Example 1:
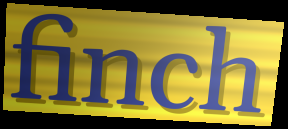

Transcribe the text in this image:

finch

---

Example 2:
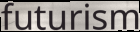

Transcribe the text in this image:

futurism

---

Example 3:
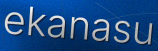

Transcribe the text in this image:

ekanasu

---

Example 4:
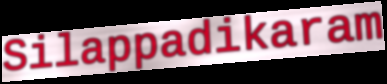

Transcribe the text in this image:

Silappadikaram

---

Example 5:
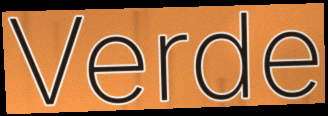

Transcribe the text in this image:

Verde